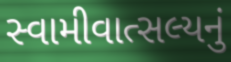
સ્વામીવાત્સલ્યનું